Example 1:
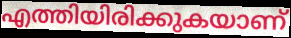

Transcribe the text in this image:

എത്തിയിരിക്കുകയാണ്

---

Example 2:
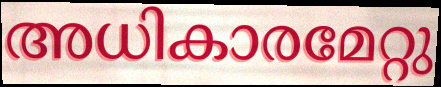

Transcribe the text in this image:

അധികാരമേറ്റു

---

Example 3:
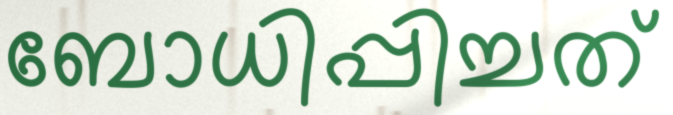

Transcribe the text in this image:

ബോധിപ്പിച്ചത്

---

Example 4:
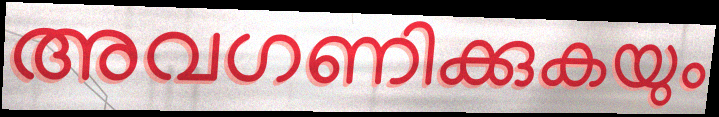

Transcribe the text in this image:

അവഗണിക്കുകയും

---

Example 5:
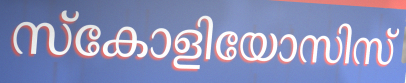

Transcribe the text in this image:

സ്കോളിയോസിസ്